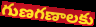
గుణగణాలకు